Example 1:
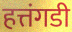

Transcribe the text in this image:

हत्तंगडी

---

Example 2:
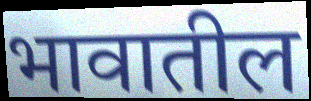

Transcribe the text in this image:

भावातील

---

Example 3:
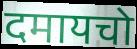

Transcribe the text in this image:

दमायचो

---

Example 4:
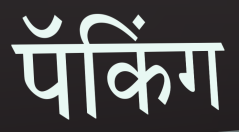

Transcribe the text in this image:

पॅकिंग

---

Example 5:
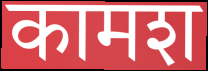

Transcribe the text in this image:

कामश